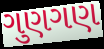
ગુણગણ